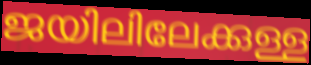
ജയിലിലേക്കുള്ള